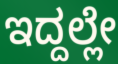
ಇದ್ದಲ್ಲೇ